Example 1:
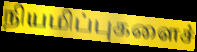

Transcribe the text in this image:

நியமிப்புகளைச்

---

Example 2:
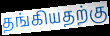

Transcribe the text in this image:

தங்கியதற்கு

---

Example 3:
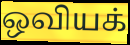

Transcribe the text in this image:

ஒவியக்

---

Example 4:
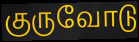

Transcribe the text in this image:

குருவோடு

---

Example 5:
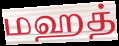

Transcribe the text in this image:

மஹத்